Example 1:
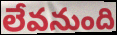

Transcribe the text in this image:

లేవనుంది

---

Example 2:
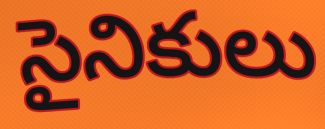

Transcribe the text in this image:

సైనికులు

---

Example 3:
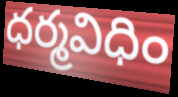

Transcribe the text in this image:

ధర్మవిధిం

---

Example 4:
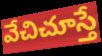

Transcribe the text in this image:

వేచిచూస్తే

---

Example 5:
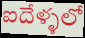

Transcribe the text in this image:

ఐదేళ్ళలో